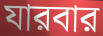
যারবার